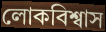
লোকবিশ্বাস